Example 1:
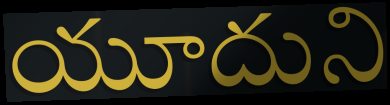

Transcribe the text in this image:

యూదుని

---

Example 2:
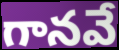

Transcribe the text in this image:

గానవే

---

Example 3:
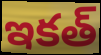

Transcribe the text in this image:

ఇకత్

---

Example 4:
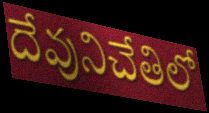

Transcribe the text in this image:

దేవునిచేతిలో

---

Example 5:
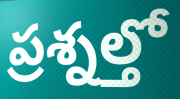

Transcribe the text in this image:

ప్రశ్నల్తో